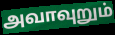
அவாவுறும்